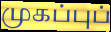
முகப்புப்